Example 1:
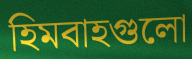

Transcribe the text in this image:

হিমবাহগুলো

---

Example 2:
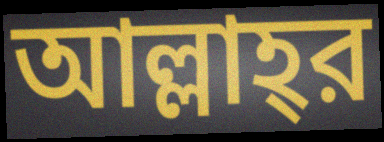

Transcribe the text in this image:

আল্লাহ্‌র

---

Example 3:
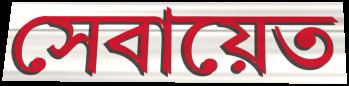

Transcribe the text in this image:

সেবায়েত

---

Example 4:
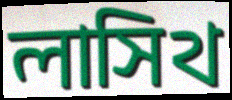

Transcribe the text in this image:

লাসিথ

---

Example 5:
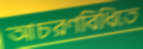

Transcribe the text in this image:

আচরণবিধিতে